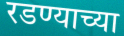
रडण्याच्या